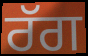
ਰੱਗ